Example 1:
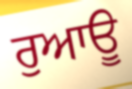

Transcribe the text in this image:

ਰੁਆਊ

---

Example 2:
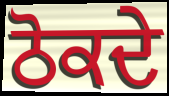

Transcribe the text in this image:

ਠੋਕਦੇ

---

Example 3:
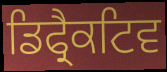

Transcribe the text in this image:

ਡਿਫ੍ਰੈਕਟਿਵ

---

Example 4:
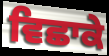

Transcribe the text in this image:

ਵਿਛਾਕੇ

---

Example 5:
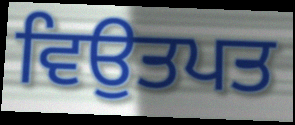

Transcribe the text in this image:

ਵਿਉਤਪਤ